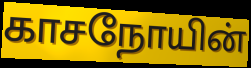
காசநோயின்